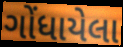
ગોંધાયેલા